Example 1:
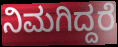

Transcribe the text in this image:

ನಿಮಗಿದ್ದರೆ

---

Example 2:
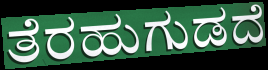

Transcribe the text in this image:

ತೆರಹುಗುಡದೆ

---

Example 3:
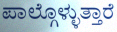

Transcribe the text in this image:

ಪಾಲ್ಗೊಳ್ಳುತ್ತಾರೆ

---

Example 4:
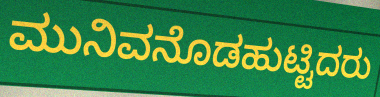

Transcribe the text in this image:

ಮುನಿವನೊಡಹುಟ್ಟಿದರು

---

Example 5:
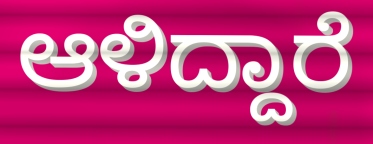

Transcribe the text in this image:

ಆಳಿದ್ದಾರೆ